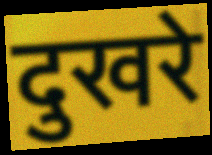
दुखरे